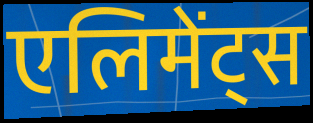
एलिमेंट्स